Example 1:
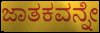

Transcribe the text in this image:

ಜಾತಕವನ್ನೇ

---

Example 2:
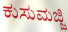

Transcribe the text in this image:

ಕುಸುಮಜ್ಜಿ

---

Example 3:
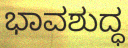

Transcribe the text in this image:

ಭಾವಶುದ್ಧ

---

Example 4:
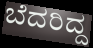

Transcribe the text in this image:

ಬೆದರಿದ್ದ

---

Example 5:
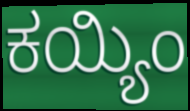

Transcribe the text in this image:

ಕಯ್ಯಿಂ